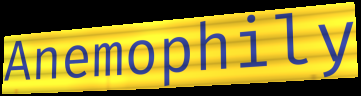
Anemophily